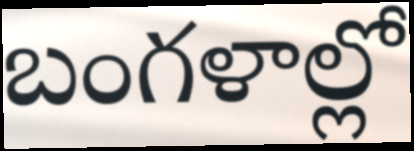
బంగళాల్లో